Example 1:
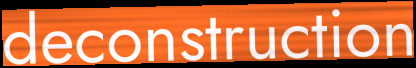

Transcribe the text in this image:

deconstruction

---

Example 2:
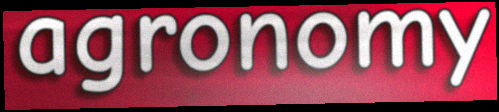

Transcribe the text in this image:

agronomy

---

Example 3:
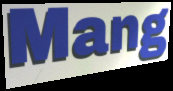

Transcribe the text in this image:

Mang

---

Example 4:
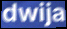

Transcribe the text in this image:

dwija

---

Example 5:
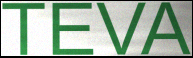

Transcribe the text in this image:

TEVA